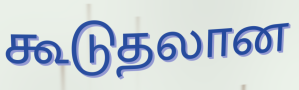
கூடுதலான